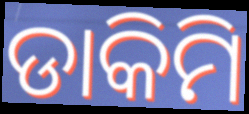
ଡାକିମି